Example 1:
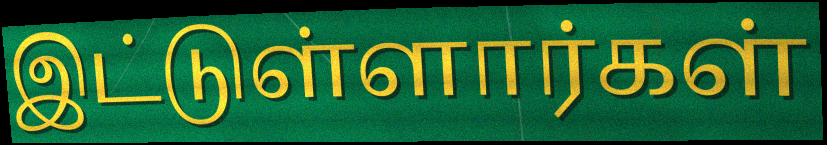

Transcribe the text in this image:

இட்டுள்ளார்கள்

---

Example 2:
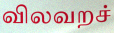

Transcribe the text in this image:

விலவறச்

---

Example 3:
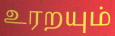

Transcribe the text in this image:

உரறயும்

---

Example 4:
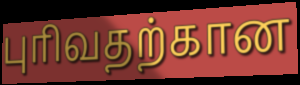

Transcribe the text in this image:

புரிவதற்கான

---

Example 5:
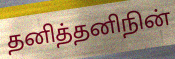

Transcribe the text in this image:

தனித்தனிநின்